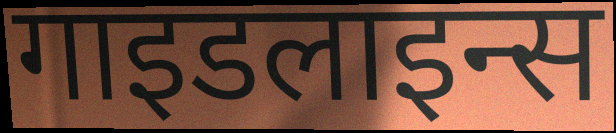
गाइडलाइन्स